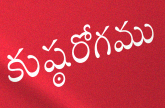
కుష్ఠరోగము